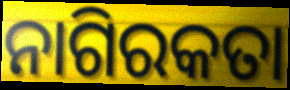
ନାଗିରକତା